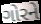
ગોરને